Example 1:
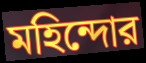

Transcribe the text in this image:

মহিন্দোর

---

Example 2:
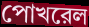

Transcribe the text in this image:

পোখরেল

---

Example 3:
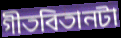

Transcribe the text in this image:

গীতবিতানটা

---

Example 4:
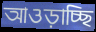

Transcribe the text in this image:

আওড়াচ্ছি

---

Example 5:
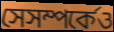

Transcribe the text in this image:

সেসম্পর্কেও